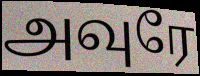
அவுரே